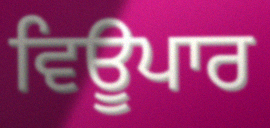
ਵਿਊਪਾਰ